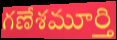
గణేశమూర్తి